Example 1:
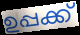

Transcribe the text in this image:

ഉപ്പക്ക്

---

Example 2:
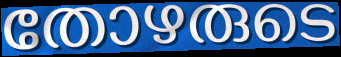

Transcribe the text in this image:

തോഴരുടെ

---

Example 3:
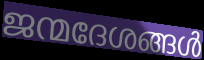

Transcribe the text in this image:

ജന്മദേശങ്ങൾ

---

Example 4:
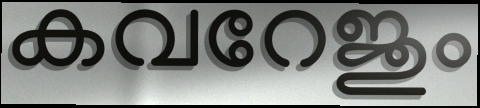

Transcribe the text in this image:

കവറേജും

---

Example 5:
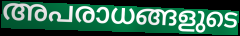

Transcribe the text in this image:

അപരാധങ്ങളുടെ